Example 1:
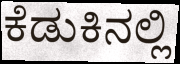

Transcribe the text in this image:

ಕೆಡುಕಿನಲ್ಲಿ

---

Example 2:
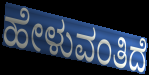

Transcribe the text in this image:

ಹೇಳುವಂತಿದೆ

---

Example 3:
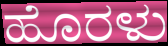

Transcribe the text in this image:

ಹೊರಳು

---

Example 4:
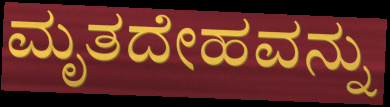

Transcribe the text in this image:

ಮೃತದೇಹವನ್ನು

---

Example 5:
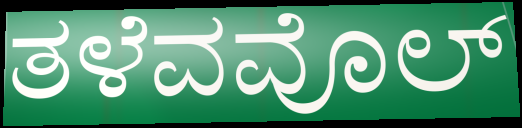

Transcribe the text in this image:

ತಳೆವವೊಲ್